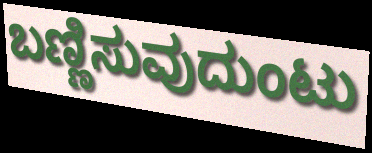
ಬಣ್ಣಿಸುವುದುಂಟು